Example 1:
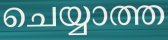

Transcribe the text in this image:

ചെയ്യാത്ത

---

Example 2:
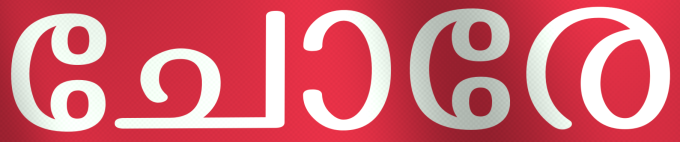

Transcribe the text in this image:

ചോരേ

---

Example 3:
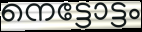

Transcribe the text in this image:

നെട്ടോട്ടം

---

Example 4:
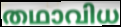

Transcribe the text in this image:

തഥാവിധ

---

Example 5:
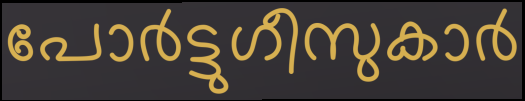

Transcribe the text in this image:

പോർട്ടുഗീസുകാർ